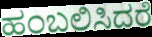
ಹಂಬಲಿಸಿದರೆ